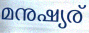
മനുഷ്യര്